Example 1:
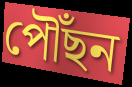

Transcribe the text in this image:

পৌঁছন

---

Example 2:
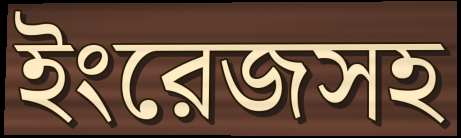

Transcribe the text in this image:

ইংরেজসহ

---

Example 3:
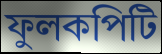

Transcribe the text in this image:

ফুলকপিটি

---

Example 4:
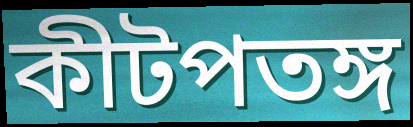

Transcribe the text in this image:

কীটপতঙ্গ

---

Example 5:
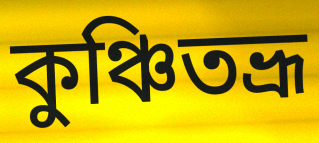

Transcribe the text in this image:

কুঞ্চিতভ্রূ